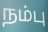
நம்பு